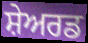
ਸ਼ੇਅਰਡ